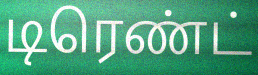
டிரெண்ட்